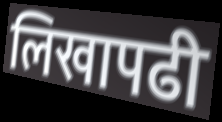
लिखापढी